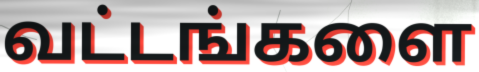
வட்டங்களை